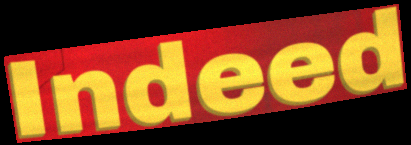
Indeed